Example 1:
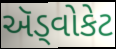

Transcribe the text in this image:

ઍડ્વોકેટ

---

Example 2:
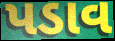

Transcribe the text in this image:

પડાવ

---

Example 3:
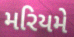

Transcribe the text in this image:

મરિયમે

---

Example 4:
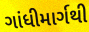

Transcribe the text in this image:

ગાંધીમાર્ગથી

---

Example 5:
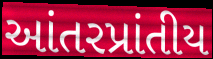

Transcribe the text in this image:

આંતરપ્રાંતીય